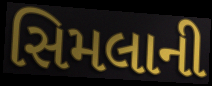
સિમલાની